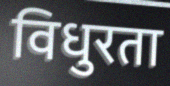
विधुरता